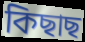
কিছাছ